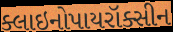
ક્લાઇનોપાયરૉક્સીન